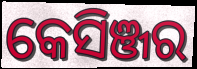
କେସିଞ୍ଜର